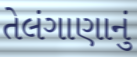
તેલંગાણાનું